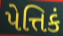
પેત્તિકં